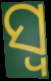
ସ୍ୱ